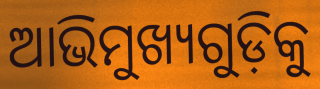
ଆଭିମୁଖ୍ୟଗୁଡ଼ିକୁ